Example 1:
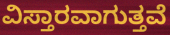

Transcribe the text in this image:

ವಿಸ್ತಾರವಾಗುತ್ತವೆ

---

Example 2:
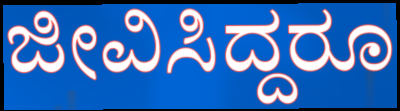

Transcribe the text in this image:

ಜೀವಿಸಿದ್ದರೂ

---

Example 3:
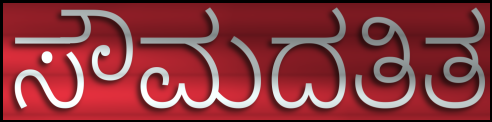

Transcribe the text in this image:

ಸೌಮದತಿತ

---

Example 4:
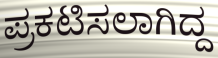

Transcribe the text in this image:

ಪ್ರಕಟಿಸಲಾಗಿದ್ದ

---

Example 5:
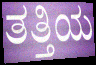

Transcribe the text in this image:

ತತ್ತಿಯ